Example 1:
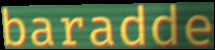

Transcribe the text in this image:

baradde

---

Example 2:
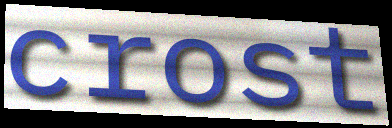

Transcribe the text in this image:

crost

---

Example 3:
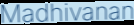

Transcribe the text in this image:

Madhivanan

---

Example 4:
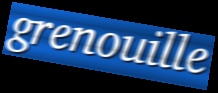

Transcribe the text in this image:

grenouille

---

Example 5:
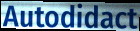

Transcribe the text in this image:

Autodidact